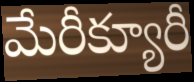
మేరీక్యూరీ